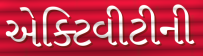
એક્ટિવીટીની